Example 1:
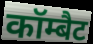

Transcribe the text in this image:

कॉम्बैट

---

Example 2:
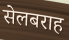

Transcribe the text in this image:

सेलबराह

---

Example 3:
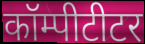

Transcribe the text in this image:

कॉम्पीटीटर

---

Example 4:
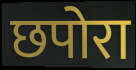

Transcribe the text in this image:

छपोरा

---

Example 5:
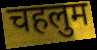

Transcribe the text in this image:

चहलुम